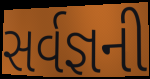
સર્વજ્ઞની